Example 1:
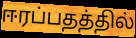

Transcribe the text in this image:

ஈரப்பதத்தில்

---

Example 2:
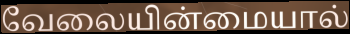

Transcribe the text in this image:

வேலையின்மையால்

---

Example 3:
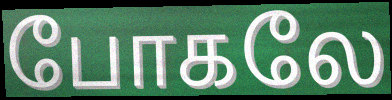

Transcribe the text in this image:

போகலே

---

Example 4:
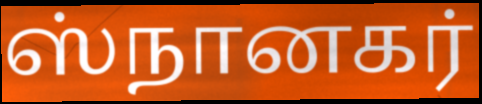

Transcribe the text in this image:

ஸ்நானகர்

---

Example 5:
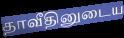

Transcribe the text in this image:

தாவீதினுடைய